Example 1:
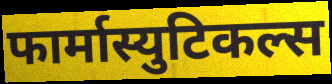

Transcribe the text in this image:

फार्मास्युटिकल्स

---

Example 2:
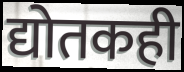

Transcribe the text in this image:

द्योतकही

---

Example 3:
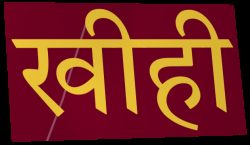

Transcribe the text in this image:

खीही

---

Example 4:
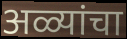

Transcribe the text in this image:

अळ्यांचा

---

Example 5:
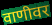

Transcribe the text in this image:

वाणीवर